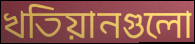
খতিয়ানগুলো